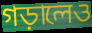
গড়ালেও